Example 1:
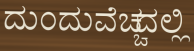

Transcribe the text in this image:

ದುಂದುವೆಚ್ಚದಲ್ಲಿ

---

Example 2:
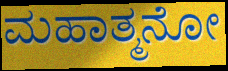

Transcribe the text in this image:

ಮಹಾತ್ಮನೋ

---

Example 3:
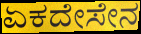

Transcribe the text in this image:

ಏಕದೇಸೇನ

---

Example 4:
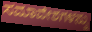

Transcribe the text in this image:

ಸಮಾವೇಶಗಳನ್ನು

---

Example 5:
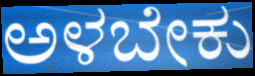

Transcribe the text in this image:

ಅಳಬೇಕು